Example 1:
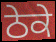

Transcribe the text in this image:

ਠੇਕੇ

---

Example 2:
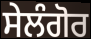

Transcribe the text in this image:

ਸੇਲੰਗੋਰ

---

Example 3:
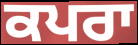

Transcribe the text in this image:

ਕਪਰਾ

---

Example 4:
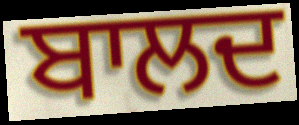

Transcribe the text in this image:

ਬਾਲਦ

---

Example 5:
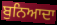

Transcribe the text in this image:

ਬੁਨਿਆਦਾ